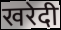
खरेदी